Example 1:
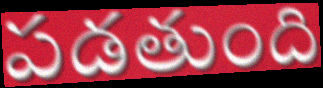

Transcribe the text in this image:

పడతుంది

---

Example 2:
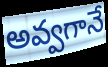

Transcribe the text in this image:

అవ్వగానే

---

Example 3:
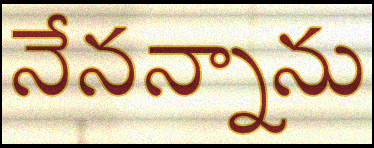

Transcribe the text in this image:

నేనన్నాను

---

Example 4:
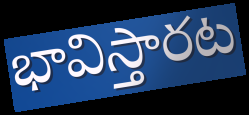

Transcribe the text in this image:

భావిస్తారట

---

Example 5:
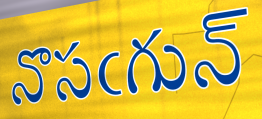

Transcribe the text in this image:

నొసఁగున్